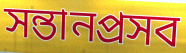
সন্তানপ্রসব